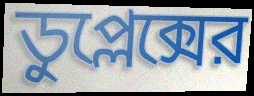
ডুপ্লেক্সের